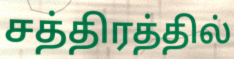
சத்திரத்தில்